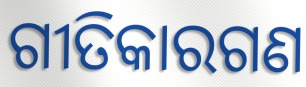
ଗୀତିକାରଗଣ